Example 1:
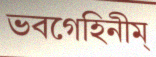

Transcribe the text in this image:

ভবগেহিনীম্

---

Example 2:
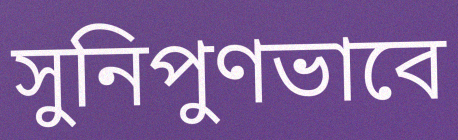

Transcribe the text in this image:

সুনিপুণভাবে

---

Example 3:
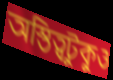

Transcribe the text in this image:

অস্তিত্বটুকুও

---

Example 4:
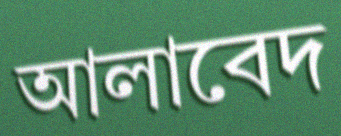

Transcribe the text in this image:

আলাবেদ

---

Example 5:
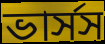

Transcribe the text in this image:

ভার্সস